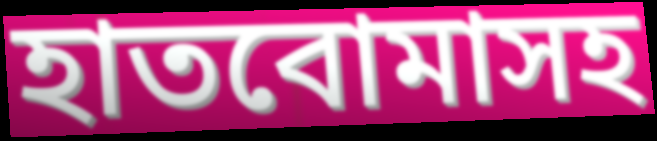
হাতবোমাসহ